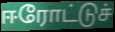
ஈரோட்டுச்